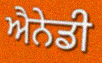
ਐਨੇਡੀ